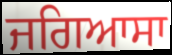
ਜਗਿਆਸਾ